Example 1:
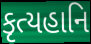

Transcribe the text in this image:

કૃત્યહાનિ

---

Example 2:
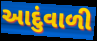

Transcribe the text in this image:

આદુંવાળી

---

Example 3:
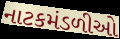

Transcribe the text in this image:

નાટકમંડળીઓ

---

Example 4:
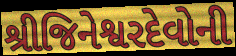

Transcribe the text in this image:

શ્રીજિનેશ્વરદેવોની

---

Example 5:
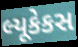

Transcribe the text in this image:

લ્યૂકેકસ